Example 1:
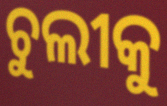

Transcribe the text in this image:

ଚୁଲୀକୁ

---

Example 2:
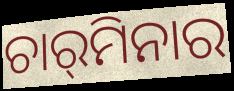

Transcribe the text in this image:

ଚାର୍‌ମିନାର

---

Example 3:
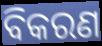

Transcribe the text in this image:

ବିକରଣ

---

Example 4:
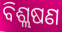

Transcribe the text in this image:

ବିଶ୍ଲଷଣ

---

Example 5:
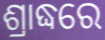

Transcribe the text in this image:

ଶ୍ରାଦ୍ଧରେ